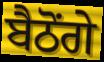
ਬੈਠੋਂਗੇ